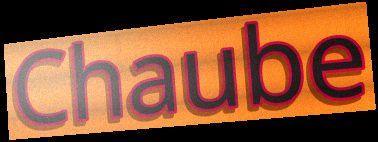
Chaube